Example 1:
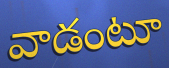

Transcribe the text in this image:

వాడంటూ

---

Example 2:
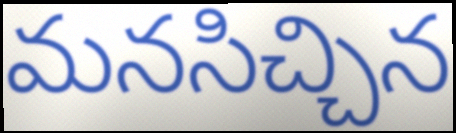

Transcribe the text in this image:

మనసిచ్చిన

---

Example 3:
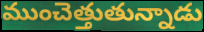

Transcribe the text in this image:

ముంచెత్తుతున్నాడు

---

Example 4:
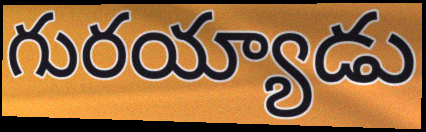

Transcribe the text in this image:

గురయ్యాడు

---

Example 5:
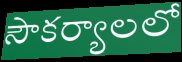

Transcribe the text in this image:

సౌకర్యాలలో